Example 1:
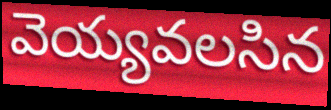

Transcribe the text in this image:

వెయ్యవలసిన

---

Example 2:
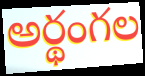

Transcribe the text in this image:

అర్థంగల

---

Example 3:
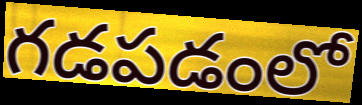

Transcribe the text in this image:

గడపడంలో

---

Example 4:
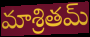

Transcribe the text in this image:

మాశ్రితమ్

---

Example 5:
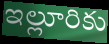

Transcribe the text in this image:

ఇల్లూరికు